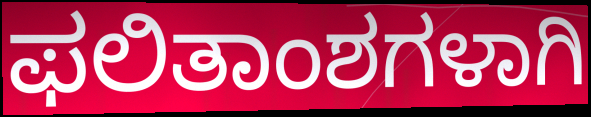
ಫಲಿತಾಂಶಗಳಾಗಿ